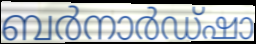
ബർനാർഡ്ഷാ